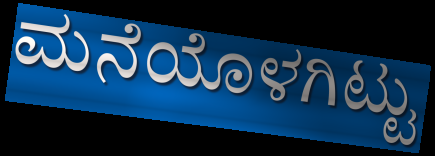
ಮನೆಯೊಳಗಿಟ್ಟು